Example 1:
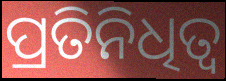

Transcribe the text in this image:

ପ୍ରତିନିଧିତ୍ବ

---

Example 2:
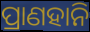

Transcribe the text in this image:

ପ୍ରାଣହାନି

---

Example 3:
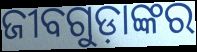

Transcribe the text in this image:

ଜୀବଗୁଡ଼ାଙ୍କର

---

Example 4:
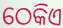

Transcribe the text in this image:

ଠେକିଏ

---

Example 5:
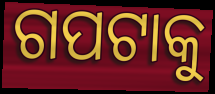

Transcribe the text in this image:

ଗପଟାକୁ